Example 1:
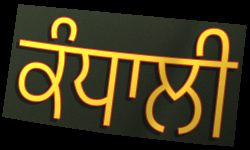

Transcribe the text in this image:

ਕੰਧਾਲੀ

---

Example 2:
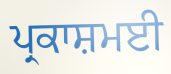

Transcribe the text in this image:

ਪ੍ਰਕਾਸ਼ਮਈ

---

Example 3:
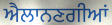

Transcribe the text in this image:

ਐਲਾਨਣਗੀਆਂ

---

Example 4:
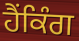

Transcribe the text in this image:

ਹੈਂਕਿੰਗ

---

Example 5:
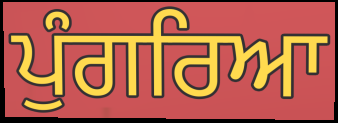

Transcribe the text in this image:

ਪੁੰਗਰਿਆ